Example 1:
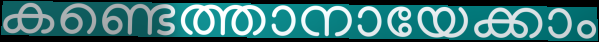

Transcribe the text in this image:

കണ്ടെത്താനായേക്കാം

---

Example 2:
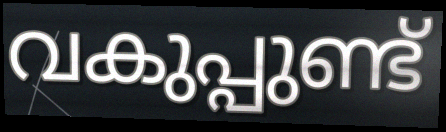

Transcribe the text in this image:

വകുപ്പുണ്ട്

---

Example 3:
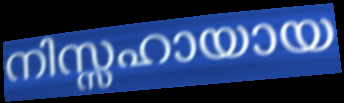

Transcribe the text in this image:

നിസ്സഹായായ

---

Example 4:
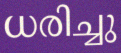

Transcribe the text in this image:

ധരിച്ചു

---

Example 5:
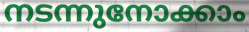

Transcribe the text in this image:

നടന്നുനോക്കാം